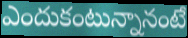
ఎందుకంటున్నానంటే